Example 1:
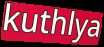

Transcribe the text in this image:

kuthlya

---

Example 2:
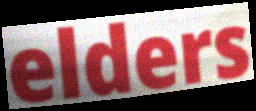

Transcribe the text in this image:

elders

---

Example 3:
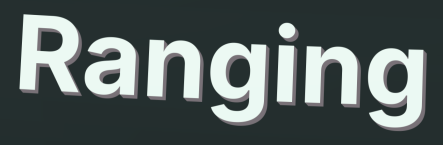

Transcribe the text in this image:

Ranging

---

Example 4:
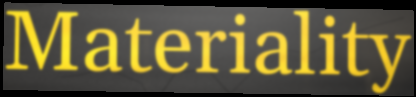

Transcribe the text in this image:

Materiality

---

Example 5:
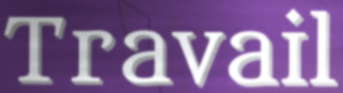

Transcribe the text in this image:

Travail